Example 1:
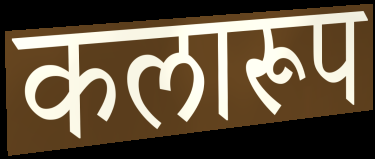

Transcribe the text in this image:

कलारूप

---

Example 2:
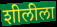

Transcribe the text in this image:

शीलीला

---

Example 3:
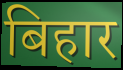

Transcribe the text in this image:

बिहार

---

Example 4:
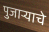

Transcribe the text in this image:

पुजाऱ्याचे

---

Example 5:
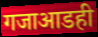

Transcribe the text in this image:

गजाआडही